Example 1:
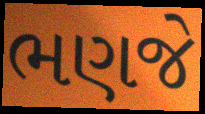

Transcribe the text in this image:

ભણજે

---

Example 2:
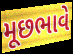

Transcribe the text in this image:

મૂછભાવે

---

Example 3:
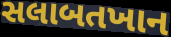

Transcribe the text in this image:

સલાબતખાન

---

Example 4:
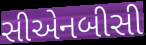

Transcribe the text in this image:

સીએનબીસી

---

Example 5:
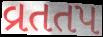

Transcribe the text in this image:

વ્રતતપ